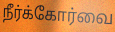
நீர்க்கோர்வை